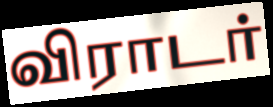
விராடர்